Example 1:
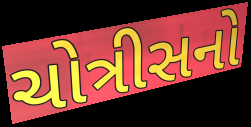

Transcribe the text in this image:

ચોત્રીસનો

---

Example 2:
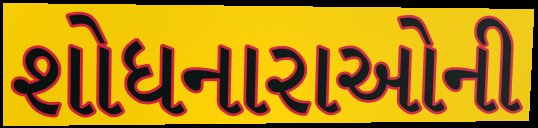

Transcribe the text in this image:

શોધનારાઓની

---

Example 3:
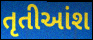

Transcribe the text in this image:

તૃતીઆંશ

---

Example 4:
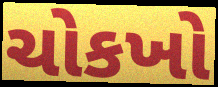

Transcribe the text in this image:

ચોકખો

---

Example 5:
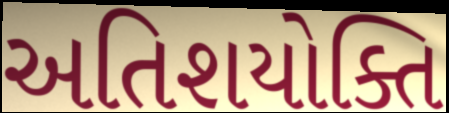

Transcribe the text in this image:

અતિશયોક્તિ